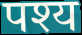
पश्य